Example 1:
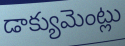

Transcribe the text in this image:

డాక్యుమెంట్లు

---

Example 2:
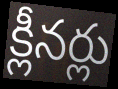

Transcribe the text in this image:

క్లీనర్లు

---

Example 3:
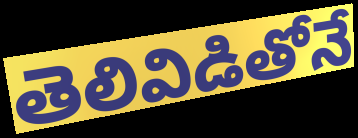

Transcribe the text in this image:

తెలివిడితోనే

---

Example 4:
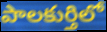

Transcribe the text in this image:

పాలకుర్తిలో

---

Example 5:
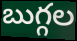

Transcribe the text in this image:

బుగ్గల